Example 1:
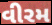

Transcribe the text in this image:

વીરમ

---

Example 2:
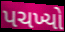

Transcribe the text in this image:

પચખ્યો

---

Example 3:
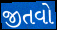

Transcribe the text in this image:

જીતવો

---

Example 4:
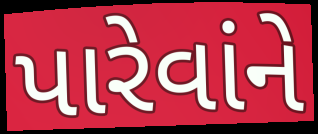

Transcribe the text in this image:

પારેવાંને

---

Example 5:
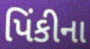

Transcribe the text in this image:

પિંકીના